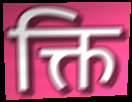
क्ति